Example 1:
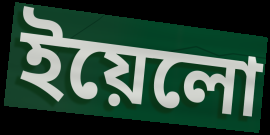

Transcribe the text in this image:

ইয়েলো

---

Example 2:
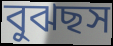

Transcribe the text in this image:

বুঝছস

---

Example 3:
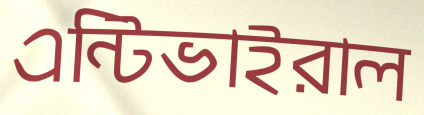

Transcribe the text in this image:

এন্টিভাইরাল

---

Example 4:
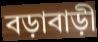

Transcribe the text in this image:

বড়াবাড়ী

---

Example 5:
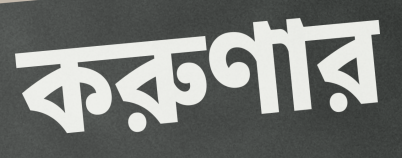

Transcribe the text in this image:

করুণার